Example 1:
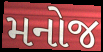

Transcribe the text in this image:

મનોજ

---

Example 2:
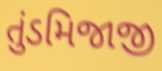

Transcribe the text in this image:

તુંડમિજાજી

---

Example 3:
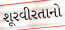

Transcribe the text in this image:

શૂરવીરતાનો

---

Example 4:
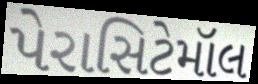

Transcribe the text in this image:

પેરાસિટેમૉલ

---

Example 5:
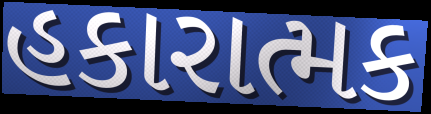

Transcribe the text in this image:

હકારાત્મક